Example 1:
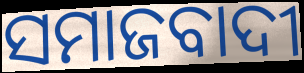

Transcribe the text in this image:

ସମାଜବାଦୀ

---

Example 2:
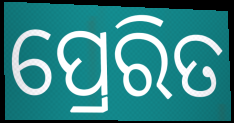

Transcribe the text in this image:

ପ୍ରେରିତ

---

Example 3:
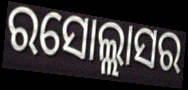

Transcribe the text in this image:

ରସୋଲ୍ଲାସର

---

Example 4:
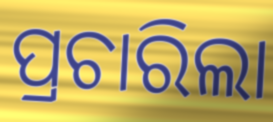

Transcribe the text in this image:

ପ୍ରଚାରିଲା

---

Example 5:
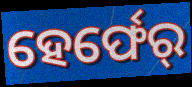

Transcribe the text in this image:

ହେର୍ଫେର୍